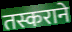
तस्कराने